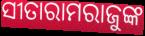
ସୀତାରାମରାଜୁଙ୍କ